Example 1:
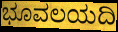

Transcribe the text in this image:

ಭೂವಲಯದಿ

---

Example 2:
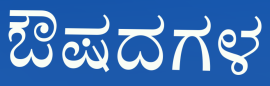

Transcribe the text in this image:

ಔಷದಗಳ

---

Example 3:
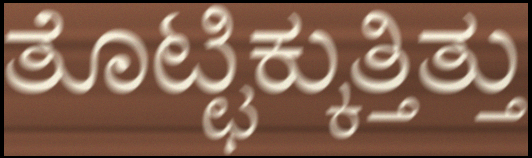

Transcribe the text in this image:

ತೊಟ್ಟಿಕ್ಕುತ್ತಿತ್ತು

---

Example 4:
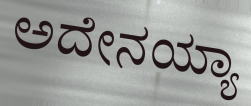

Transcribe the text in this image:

ಅದೇನಯ್ಯಾ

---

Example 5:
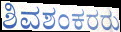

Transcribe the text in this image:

ಶಿವಶಂಕರರು